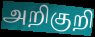
அறிகுறி